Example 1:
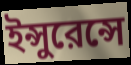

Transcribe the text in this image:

ইন্সুরেন্সে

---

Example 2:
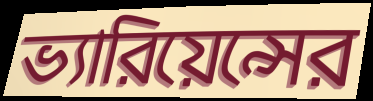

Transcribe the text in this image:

ভ্যারিয়েন্সের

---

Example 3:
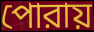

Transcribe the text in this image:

পোরায়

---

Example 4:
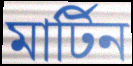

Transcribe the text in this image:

মার্টিন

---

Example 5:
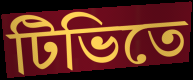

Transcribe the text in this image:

টিভিতে